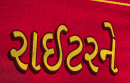
રાઈટરને